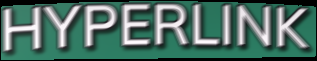
HYPERLINK